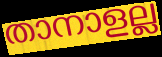
താനാളല്ല